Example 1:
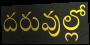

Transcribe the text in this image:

దరువుల్లో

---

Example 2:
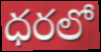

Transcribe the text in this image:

ధరలో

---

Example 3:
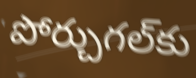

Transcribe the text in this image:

పోర్చుగల్‌కు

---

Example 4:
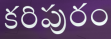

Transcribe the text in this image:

కరిపురం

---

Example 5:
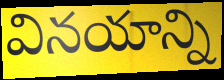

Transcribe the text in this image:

వినయాన్ని